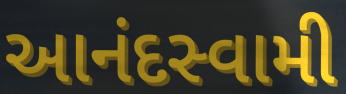
આનંદસ્વામી